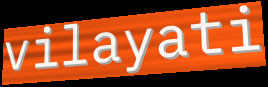
vilayati